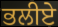
ਭਲੀਏ